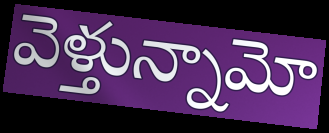
వెళ్తున్నామో